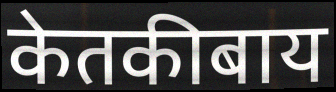
केतकीबाय